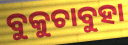
ବୁକୁଚାବୁହା